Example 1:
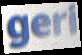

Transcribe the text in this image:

geri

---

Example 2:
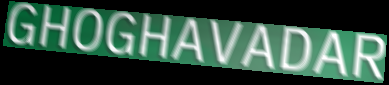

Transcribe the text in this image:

GHOGHAVADAR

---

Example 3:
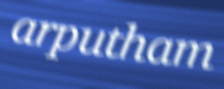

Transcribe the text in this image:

arputham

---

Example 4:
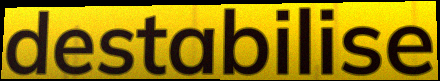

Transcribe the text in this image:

destabilise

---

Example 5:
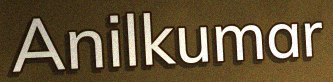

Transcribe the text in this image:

Anilkumar